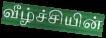
வீழ்ச்சியின்